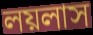
লয়লাস